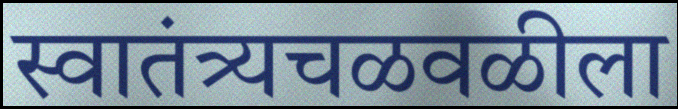
स्वातंत्र्यचळवळीला